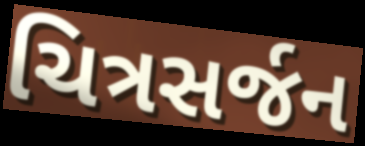
ચિત્રસર્જન